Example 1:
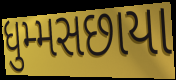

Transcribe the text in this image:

ધુમ્મસછાયા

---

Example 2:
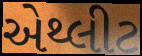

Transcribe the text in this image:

એથ્લીટ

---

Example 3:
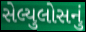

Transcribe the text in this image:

સેલ્યુલોસનું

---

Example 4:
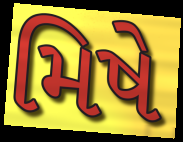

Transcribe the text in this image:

મિષે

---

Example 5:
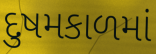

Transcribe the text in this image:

દુષમકાળમાં